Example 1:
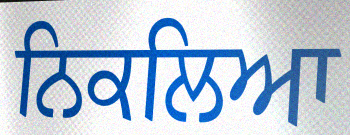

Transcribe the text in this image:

ਨਿਕਲਿਆ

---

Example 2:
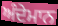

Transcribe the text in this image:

ਅੰਦੇਮਾਨ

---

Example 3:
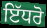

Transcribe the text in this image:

ਇੱਧਰੋ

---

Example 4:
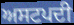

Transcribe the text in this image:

ਅਸਟਪਦੀ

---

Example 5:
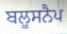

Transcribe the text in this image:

ਬਲੂਸਨੈਪ